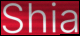
Shia